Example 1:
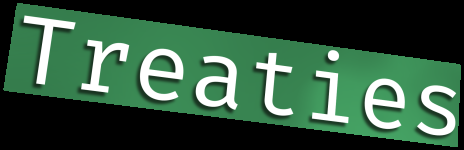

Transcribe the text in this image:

Treaties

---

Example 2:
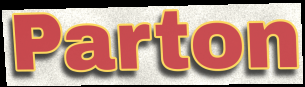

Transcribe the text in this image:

Parton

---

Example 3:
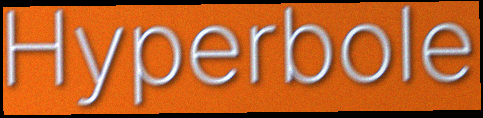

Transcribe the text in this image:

Hyperbole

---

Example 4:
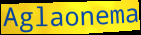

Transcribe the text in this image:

Aglaonema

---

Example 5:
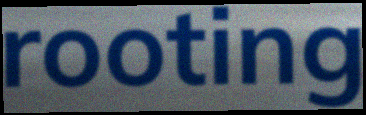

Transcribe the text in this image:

rooting